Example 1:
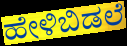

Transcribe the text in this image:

ಹೇಳಿಬಿಡಲೆ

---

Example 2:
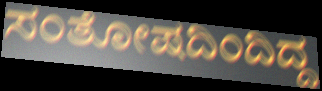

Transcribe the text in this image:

ಸಂತೋಷದಿಂದಿದ್ದ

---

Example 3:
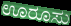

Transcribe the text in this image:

ಊರೂಸು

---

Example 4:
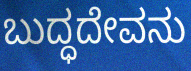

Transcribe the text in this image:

ಬುದ್ಧದೇವನು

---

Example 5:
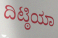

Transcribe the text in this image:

ದಿಟ್ಠಿಯಾ